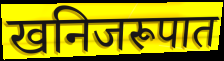
खनिजरूपात